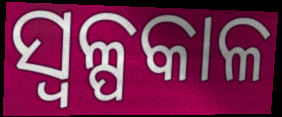
ସ୍ୱଳ୍ପକାଳ